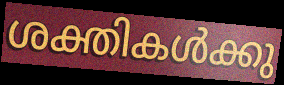
ശക്തികൾക്കു